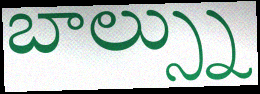
బాల్స్ను